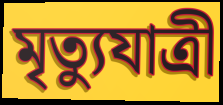
মৃত্যুযাত্রী